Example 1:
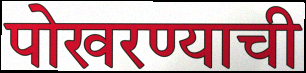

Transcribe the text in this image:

पोखरण्याची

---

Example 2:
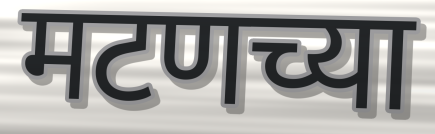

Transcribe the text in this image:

मटणच्या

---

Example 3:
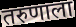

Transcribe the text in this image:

तरुणाला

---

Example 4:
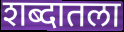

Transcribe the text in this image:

शब्दातला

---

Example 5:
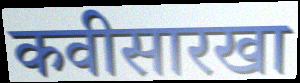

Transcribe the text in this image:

कवीसारखा